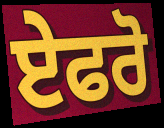
ਏਫਰੋ